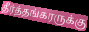
தீர்த்தங்கரருக்கு